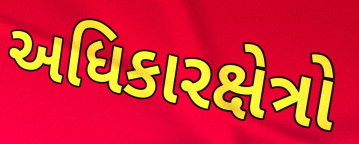
અધિકારક્ષેત્રો